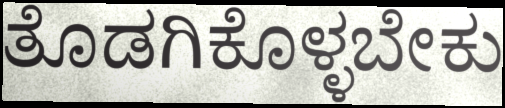
ತೊಡಗಿಕೊಳ್ಳಬೇಕು